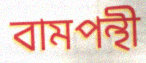
বামপন্থী